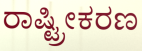
ರಾಷ್ಟ್ರೀಕರಣ